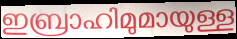
ഇബ്രാഹിമുമായുള്ള